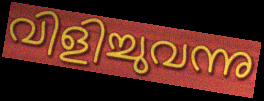
വിളിച്ചുവന്നു